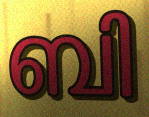
ബി